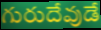
గురుదేవుడే